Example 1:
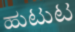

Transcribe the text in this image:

ಹುಟುಟ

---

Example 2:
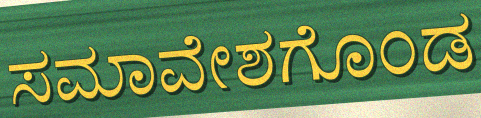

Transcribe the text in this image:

ಸಮಾವೇಶಗೊಂಡ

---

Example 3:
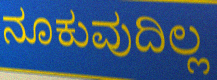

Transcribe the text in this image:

ನೂಕುವುದಿಲ್ಲ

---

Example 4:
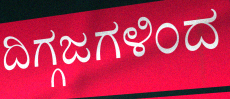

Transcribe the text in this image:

ದಿಗ್ಗಜಗಳಿಂದ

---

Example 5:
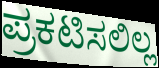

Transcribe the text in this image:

ಪ್ರಕಟಿಸಲಿಲ್ಲ